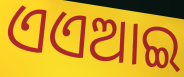
ଏଏଆଇ